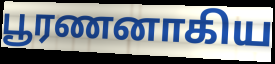
பூரணனாகிய